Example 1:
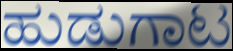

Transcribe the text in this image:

ಹುಡುಗಾಟ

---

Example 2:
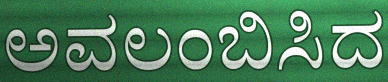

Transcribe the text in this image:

ಅವಲಂಬಿಸಿದ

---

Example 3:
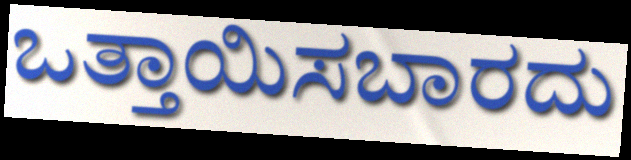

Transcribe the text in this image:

ಒತ್ತಾಯಿಸಬಾರದು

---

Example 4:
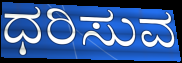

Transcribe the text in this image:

ಧರಿಸುವ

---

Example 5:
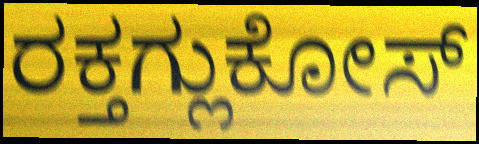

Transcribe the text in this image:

ರಕ್ತಗ್ಲುಕೋಸ್